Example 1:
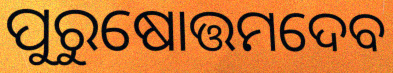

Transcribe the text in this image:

ପୁରୁଷୋତ୍ତମଦେବ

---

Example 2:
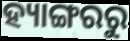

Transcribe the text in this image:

ହ୍ୟାଙ୍ଗରରୁ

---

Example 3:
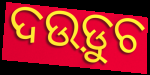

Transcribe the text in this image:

ଦଉଡ଼ୁଚ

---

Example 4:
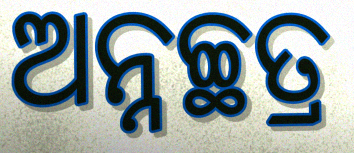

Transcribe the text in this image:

ଅନ୍ନଚ୍ଛତ୍ର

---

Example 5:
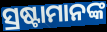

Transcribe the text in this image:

ସ୍ରଷ୍ଟାମାନଙ୍କ